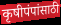
कृषीपंपांसाठी